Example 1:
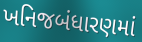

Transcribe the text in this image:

ખનિજબંધારણમાં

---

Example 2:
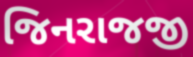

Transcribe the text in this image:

જિનરાજજી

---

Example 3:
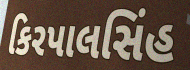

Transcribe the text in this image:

કિરપાલસિંહ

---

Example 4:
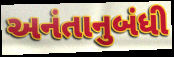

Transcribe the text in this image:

અનંતાનુબંધી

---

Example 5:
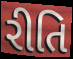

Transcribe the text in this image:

રીતિ